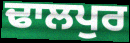
ਢਾਲਪੁਰ